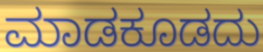
ಮಾಡಕೂಡದು